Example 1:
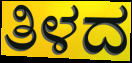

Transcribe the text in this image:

ತಿಳದ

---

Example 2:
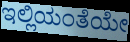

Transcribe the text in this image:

ಇಲ್ಲಿಯಂತೆಯೇ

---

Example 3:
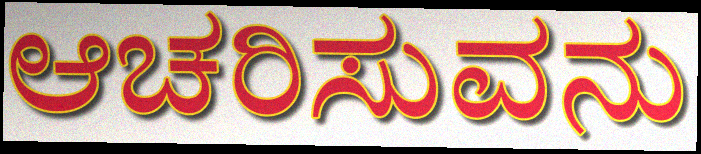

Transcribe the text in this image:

ಆಚರಿಸುವನು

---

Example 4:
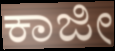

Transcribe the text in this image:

ಕಾಜೀ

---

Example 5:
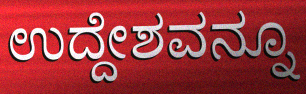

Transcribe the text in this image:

ಉದ್ದೇಶವನ್ನೂ